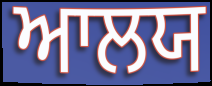
ਆਲਯ